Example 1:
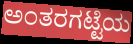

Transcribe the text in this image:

ಅಂತರಗಟ್ಟೆಯ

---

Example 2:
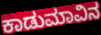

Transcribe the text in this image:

ಕಾಡುಮಾವಿನ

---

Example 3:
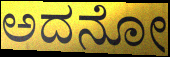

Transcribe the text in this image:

ಅದನೋ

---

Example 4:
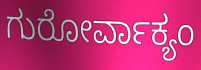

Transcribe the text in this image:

ಗುರೋರ್ವಾಕ್ಯಂ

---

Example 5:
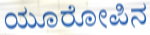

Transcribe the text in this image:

ಯೂರೋಪಿನ